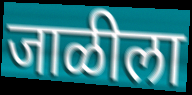
जाळीला